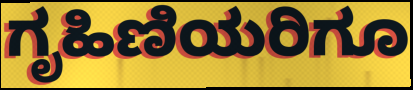
ಗೃಹಿಣಿಯರಿಗೂ